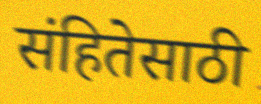
संहितेसाठी